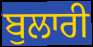
ਬੁਲਾਰੀ